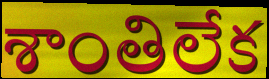
శాంతిలేక